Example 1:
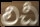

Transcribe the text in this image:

లిచీ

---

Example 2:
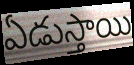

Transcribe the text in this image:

ఏడుస్తాయి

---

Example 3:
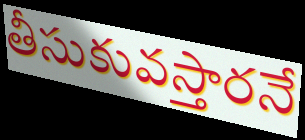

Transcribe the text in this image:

తీసుకువస్తారనే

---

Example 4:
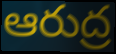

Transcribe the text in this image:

ఆరుద్ర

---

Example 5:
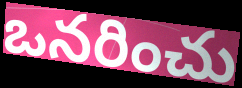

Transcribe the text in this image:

ఒనరించు